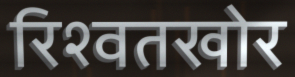
रिश्वतखोर